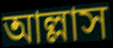
আল্লাস